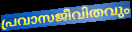
പ്രവാസജീവിതവും